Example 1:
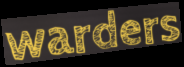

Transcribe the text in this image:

warders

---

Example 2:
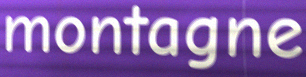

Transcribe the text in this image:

montagne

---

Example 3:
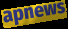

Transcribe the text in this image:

apnews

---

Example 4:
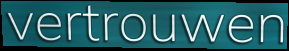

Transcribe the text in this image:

vertrouwen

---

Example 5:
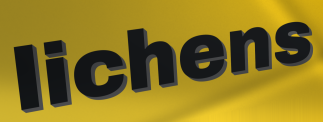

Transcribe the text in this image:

lichens